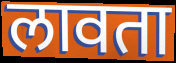
लावता